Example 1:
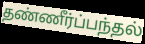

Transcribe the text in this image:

தண்ணீர்ப்பந்தல்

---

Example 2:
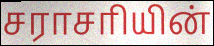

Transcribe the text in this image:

சராசரியின்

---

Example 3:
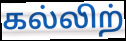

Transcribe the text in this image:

கல்லிற்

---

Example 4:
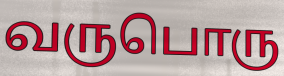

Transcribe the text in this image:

வருபொரு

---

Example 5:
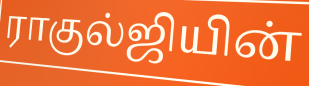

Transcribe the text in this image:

ராகுல்ஜியின்